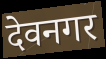
देवनगर